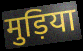
मुड़िया